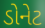
ડોનેટ